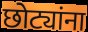
छोट्यांना